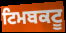
ਟਿਮਬਕਟੂ